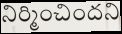
నిర్మించిందని